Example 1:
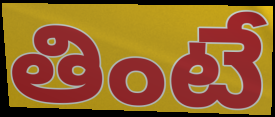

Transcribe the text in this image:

తింటే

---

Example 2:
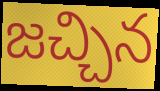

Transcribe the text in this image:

జచ్చిన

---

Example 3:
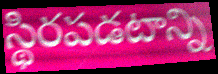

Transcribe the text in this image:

స్థిరపడటాన్ని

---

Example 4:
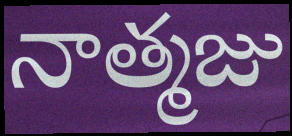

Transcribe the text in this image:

నాత్మజు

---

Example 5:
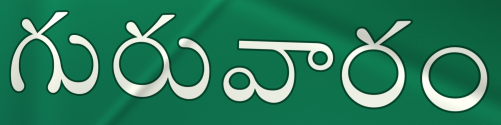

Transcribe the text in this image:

గురువారం